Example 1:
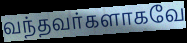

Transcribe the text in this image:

வந்தவர்களாகவே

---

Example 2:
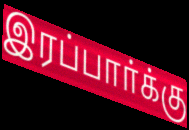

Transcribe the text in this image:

இரப்பார்க்கு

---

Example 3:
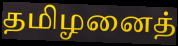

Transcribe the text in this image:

தமிழனைத்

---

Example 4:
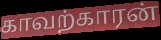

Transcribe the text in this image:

காவற்காரன்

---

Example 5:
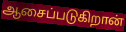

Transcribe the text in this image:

ஆசைப்படுகிறான்